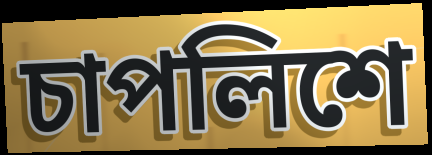
চাপলিশে